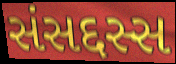
સંસદ્દસ્સ